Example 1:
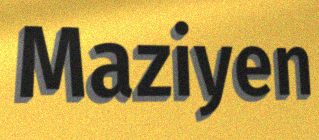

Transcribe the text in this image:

Maziyen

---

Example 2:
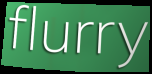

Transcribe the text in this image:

flurry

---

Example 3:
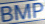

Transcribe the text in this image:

BMP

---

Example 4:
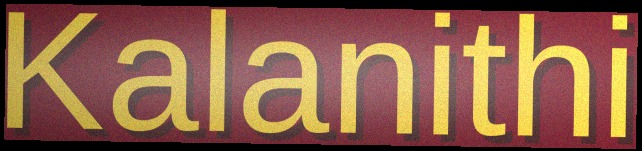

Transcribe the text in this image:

Kalanithi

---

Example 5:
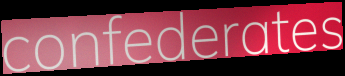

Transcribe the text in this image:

confederates